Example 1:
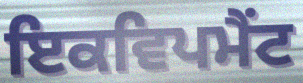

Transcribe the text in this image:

ਇਕਵਿਪਮੈਂਟ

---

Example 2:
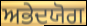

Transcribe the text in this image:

ਅਭੇਦਯੋਗ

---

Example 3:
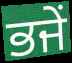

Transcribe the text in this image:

ਭਜੇਂ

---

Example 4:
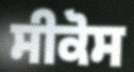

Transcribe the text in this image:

ਸੀਕੋਸ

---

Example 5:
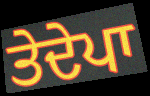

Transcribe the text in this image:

ਤੇਦੇਪਾ